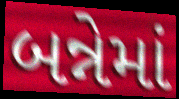
બન્નેમાં